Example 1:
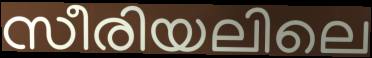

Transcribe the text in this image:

സീരിയലിലെ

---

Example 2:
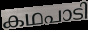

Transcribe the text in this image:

കഥപാടി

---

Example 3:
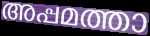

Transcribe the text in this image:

അപ്പമത്താ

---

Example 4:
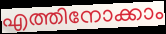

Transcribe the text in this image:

എത്തിനോക്കാം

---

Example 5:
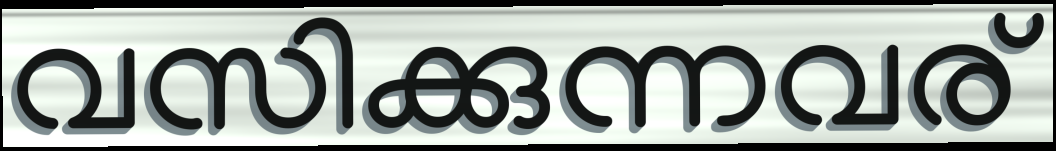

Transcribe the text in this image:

വസിക്കുന്നവര്